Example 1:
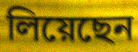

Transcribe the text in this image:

লিয়েছেন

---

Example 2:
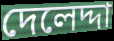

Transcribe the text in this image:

দেলেদ্দা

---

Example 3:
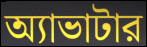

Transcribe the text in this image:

অ্যাভাটার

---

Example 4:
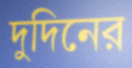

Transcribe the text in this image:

দুদিনের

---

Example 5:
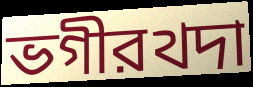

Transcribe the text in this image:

ভগীরথদা